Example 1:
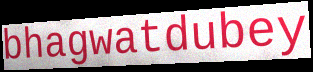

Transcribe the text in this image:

bhagwatdubey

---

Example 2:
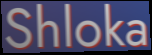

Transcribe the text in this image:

Shloka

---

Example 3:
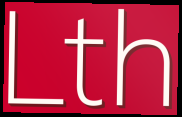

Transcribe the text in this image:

Lth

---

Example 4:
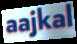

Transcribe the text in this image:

aajkal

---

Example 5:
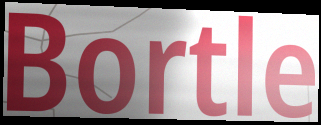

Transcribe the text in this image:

Bortle